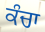
ਕੰਚਾ